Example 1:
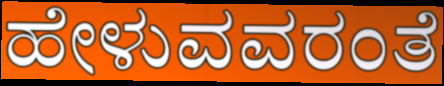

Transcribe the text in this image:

ಹೇಳುವವರಂತೆ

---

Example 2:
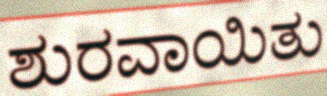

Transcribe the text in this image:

ಶುರವಾಯಿತು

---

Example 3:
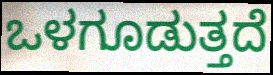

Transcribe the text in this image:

ಒಳಗೂಡುತ್ತದೆ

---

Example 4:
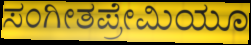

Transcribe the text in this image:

ಸಂಗೀತಪ್ರೇಮಿಯೂ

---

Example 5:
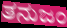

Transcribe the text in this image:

ತನುಜಂ